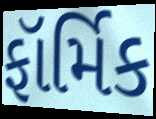
ફૉર્મિક